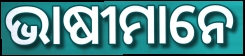
ଭାଷୀମାନେ